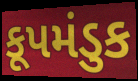
કૂપમંડુક